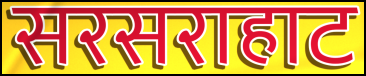
सरसराहाट